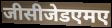
जीसीजेडएमए